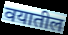
वयातील